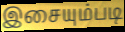
இசையும்படி